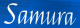
Samura